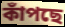
কাঁপছে